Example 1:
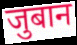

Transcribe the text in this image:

जुबान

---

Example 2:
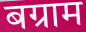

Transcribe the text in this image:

बग्राम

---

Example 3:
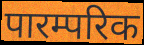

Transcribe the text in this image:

पारम्परिक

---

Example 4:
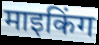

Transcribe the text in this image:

माइकिंग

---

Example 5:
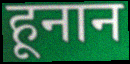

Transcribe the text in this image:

हूनान